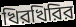
খিরখিরির